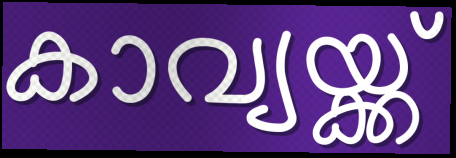
കാവ്യയ്ക്ക്